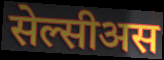
सेल्सीअस